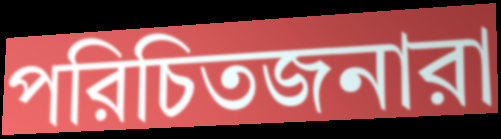
পরিচিতজনারা